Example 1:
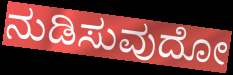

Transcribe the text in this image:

ನುಡಿಸುವುದೋ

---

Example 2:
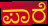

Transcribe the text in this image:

ಪಾರೆ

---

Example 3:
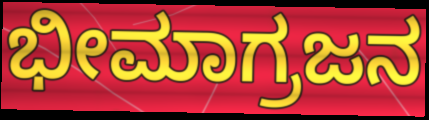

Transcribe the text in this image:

ಭೀಮಾಗ್ರಜನ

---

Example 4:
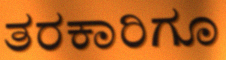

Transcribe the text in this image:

ತರಕಾರಿಗೂ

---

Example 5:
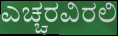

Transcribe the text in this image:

ಎಚ್ಚರವಿರಲಿ